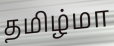
தமிழ்மா